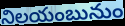
నిలయంబునుం